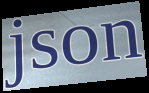
json